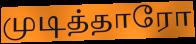
முடித்தாரோ